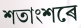
শতাংশৰে